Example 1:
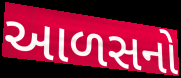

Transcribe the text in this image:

આળસનો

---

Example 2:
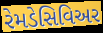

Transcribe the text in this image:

રેમડેસિવિઅર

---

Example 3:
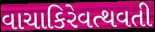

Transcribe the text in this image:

વાચાકિરેવત્થવતી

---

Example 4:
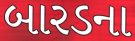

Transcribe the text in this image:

બારડના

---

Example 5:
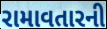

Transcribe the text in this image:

રામાવતારની